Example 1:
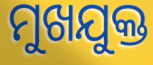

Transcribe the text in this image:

ମୁଖଯୁକ୍ତ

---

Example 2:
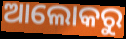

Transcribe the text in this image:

ଆଲୋକରୁ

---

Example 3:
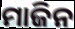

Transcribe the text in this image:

ମାଜିନ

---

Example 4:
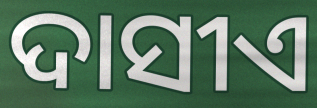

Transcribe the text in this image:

ଦାସୀଏ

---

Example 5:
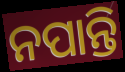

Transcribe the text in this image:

ନପାନ୍ତି